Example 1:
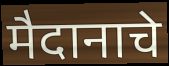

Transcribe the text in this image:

मैदानाचे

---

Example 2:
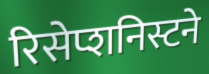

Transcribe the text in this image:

रिसेप्शनिस्टने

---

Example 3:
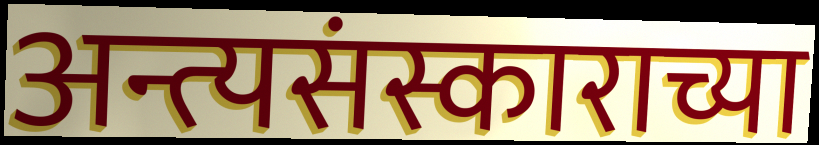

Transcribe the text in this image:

अन्त्यसंस्काराच्या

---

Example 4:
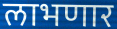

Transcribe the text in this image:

लाभणार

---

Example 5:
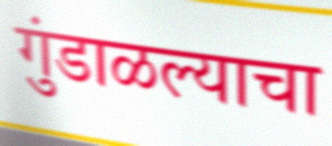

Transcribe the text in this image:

गुंडाळल्याचा